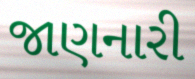
જાણનારી